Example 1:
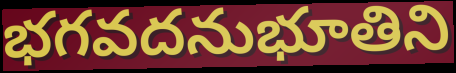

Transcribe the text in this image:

భగవదనుభూతిని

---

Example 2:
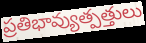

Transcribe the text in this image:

ప్రతిభావ్యుత్పత్తులు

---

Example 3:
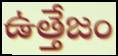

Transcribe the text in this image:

ఉత్తేజం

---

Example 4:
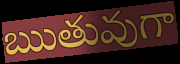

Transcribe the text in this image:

ఋతువుగా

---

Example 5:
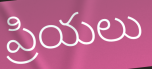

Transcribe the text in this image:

ప్రియలు